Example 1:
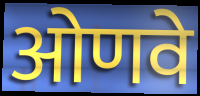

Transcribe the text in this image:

ओणवे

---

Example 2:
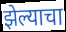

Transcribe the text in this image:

झेल्याचा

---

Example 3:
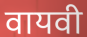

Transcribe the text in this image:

वायवी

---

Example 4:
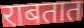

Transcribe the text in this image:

राबतात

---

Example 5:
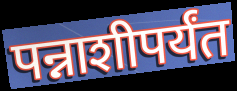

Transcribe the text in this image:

पन्नाशीपर्यंत